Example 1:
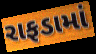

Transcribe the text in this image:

રાફડામાં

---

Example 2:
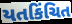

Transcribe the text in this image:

યતકિંચિત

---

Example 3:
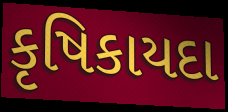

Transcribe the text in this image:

કૃષિકાયદા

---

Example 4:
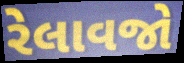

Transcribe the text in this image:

રેલાવજો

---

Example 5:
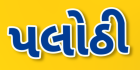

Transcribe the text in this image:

પલોઠી